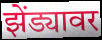
झेंड्यावर